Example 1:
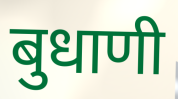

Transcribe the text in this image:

बुधाणी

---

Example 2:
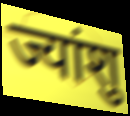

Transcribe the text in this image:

ज्यांशु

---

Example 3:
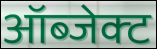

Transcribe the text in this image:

ऑब्‍जेक्‍ट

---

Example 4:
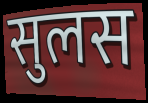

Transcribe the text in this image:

सुलस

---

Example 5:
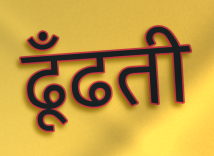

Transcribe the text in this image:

ढूँढती